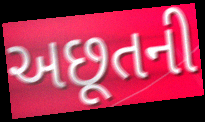
અછૂતની